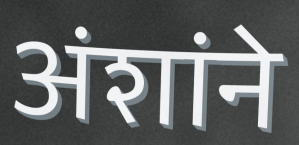
अंशांने